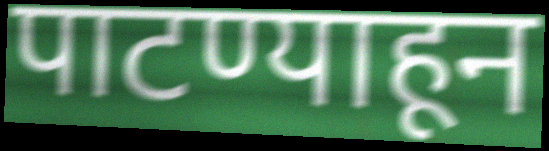
पाटण्याहून